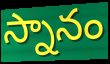
స్నానం